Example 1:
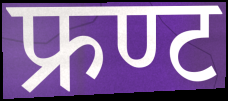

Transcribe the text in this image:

फ्रण्ट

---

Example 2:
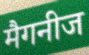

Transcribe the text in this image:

मैगनीज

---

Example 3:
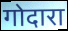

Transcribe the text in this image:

गोदारा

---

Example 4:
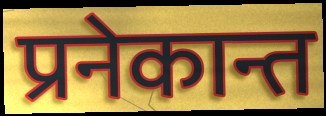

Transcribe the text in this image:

प्रनेकान्त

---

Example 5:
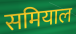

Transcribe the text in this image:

समियाल